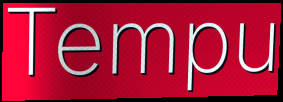
Tempu